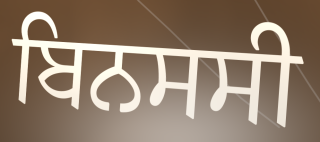
ਬਿਨਸਸੀ